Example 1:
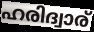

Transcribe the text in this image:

ഹരിദ്വാര്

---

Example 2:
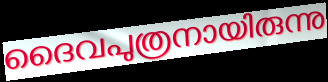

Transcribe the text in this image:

ദൈവപുത്രനായിരുന്നു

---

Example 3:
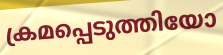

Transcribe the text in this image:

ക്രമപ്പെടുത്തിയോ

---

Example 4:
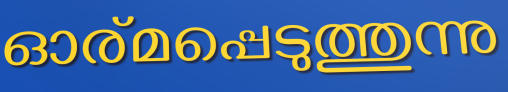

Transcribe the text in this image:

ഓര്മപ്പെടുത്തുന്നു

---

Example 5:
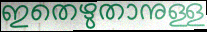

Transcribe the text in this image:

ഇതെഴുതാനുള്ള